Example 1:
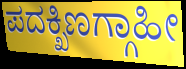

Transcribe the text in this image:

ಪದಕ್ಖಿಣಗ್ಗಾಹೀ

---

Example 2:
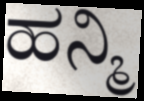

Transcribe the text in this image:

ಹನ್ಮಿ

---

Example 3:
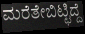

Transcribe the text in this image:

ಮರೆತೇಬಿಟ್ಟಿದ್ದೆ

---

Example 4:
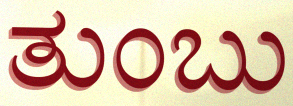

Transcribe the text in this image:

ತುಂಬು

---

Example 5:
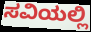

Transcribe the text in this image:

ಸವಿಯಲ್ಲಿ